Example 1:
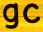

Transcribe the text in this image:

gc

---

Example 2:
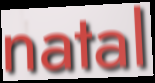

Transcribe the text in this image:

natal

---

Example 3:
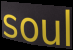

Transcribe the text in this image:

soul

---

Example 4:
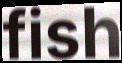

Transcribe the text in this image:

fish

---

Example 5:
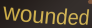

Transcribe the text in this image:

wounded